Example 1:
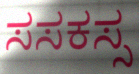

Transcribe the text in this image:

ಸಸಕಸ್ಸ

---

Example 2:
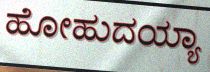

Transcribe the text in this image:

ಹೋಹುದಯ್ಯಾ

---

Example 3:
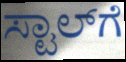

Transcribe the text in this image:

ಸ್ಟಾಲ್‌ಗೆ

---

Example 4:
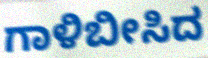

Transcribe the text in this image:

ಗಾಳಿಬೀಸಿದ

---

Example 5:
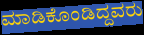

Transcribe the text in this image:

ಮಾಡಿಕೊಂಡಿದ್ದವರು